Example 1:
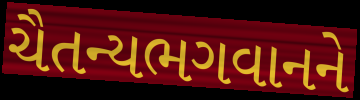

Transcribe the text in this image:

ચૈતન્યભગવાનને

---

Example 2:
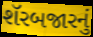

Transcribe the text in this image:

શૅરબજારનું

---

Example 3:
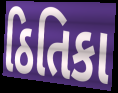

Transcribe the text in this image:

ઠિતિકા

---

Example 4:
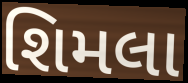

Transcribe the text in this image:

શિમલા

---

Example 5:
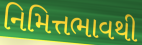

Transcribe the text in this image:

નિમિત્તભાવથી